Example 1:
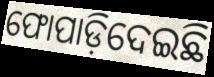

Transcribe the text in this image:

ଫୋପାଡ଼ିଦେଇଛି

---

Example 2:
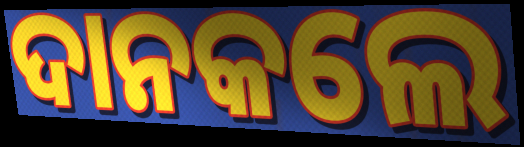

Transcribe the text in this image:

ଦାନକଲେ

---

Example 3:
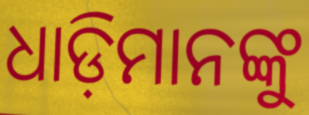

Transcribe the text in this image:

ଧାଡ଼ିମାନଙ୍କୁ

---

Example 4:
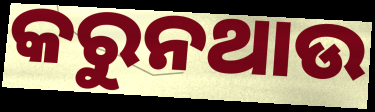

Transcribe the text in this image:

କରୁନଥାଉ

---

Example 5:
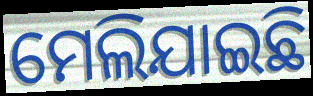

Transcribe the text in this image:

ମେଲିଯାଇଛି